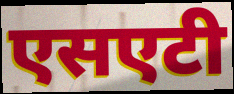
एसएटी